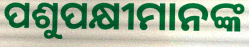
ପଶୁପକ୍ଷୀମାନଙ୍କ